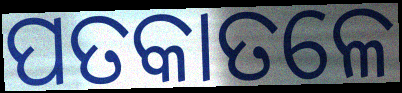
ପତକାତଳେ